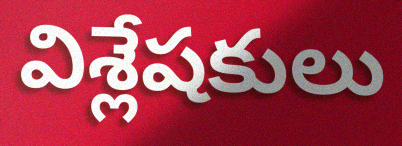
విశ్లేషకులు